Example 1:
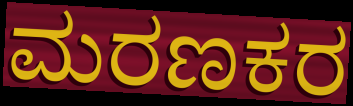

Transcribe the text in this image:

ಮರಣಕರ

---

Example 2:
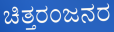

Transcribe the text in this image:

ಚಿತ್ತರಂಜನರ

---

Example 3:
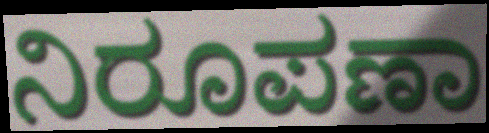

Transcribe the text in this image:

ನಿರೂಪಣಾ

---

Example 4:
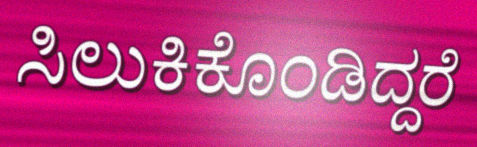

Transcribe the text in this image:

ಸಿಲುಕಿಕೊಂಡಿದ್ದರೆ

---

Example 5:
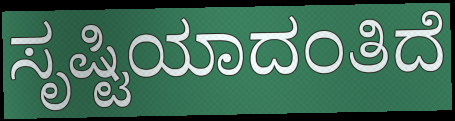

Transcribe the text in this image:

ಸೃಷ್ಟಿಯಾದಂತಿದೆ